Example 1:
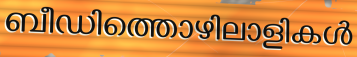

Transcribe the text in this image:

ബീഡിത്തൊഴിലാളികൾ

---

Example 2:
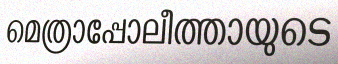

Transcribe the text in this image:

മെത്രാപ്പോലീത്തായുടെ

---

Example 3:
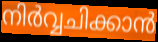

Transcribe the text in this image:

നിർവ്വചിക്കാൻ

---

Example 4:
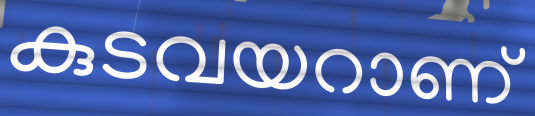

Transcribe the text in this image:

കുടവയറാണ്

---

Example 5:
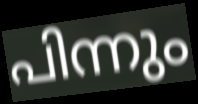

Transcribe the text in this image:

പിന്നും